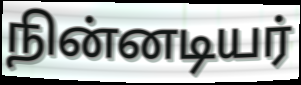
நின்னடியர்